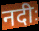
नदीः